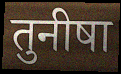
तुनीषा